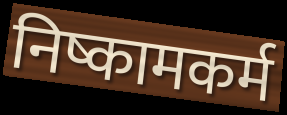
निष्कामकर्म